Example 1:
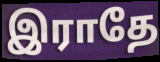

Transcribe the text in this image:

இராதே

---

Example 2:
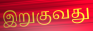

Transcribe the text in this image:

இறுகுவது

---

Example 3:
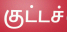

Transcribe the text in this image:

குட்டச்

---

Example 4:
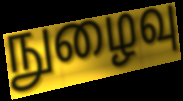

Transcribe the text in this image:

நுழைவு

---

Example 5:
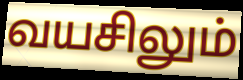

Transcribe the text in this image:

வயசிலும்